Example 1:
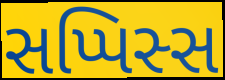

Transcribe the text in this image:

સપ્પિસ્સ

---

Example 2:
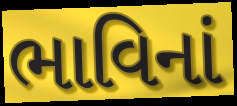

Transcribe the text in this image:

ભાવિનાં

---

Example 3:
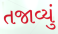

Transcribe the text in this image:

તજાવ્યું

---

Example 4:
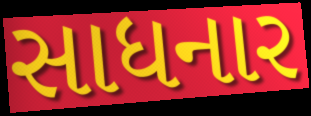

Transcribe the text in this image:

સાધનાર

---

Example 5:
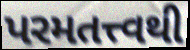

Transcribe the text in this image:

પરમતત્ત્વથી